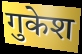
गुकेश